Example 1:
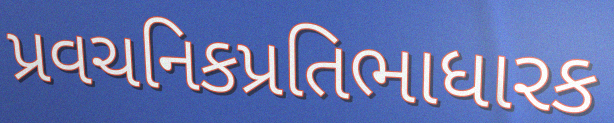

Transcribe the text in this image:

પ્રવચનિકપ્રતિભાધારક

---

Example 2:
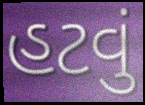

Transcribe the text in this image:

હટવું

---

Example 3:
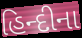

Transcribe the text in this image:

હિન્દીના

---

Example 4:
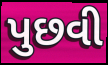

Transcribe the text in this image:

પુછવી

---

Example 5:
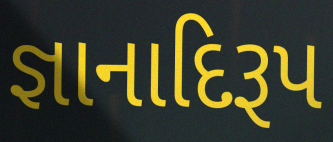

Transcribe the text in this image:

જ્ઞાનાદિરૂપ